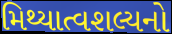
મિથ્યાત્વશલ્યનો